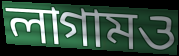
লাগামও